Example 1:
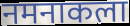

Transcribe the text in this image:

नमनाकला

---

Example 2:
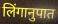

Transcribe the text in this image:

लिंगानुपात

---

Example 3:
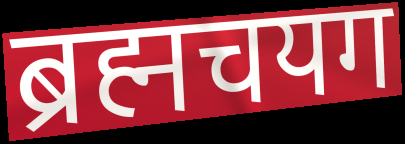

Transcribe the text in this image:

ब्रह्मचयग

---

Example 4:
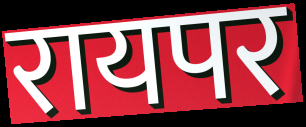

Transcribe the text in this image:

रायपर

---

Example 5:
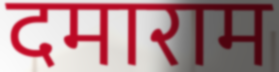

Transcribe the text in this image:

दमाराम